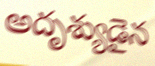
అదృశ్యుడైన